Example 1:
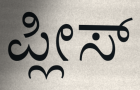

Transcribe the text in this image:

ಪ್ಲೀಸ್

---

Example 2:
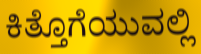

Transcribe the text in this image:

ಕಿತ್ತೊಗೆಯುವಲ್ಲಿ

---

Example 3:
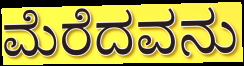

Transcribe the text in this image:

ಮೆರೆದವನು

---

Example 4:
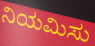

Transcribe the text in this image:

ನಿಯಮಿಸು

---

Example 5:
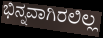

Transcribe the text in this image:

ಭಿನ್ನವಾಗಿರಲಿಲ್ಲ